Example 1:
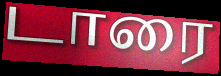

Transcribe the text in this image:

டாரை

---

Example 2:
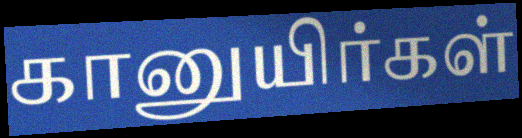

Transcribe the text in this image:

கானுயிர்கள்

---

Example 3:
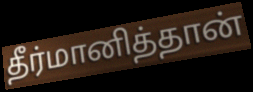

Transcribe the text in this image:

தீர்மானித்தான்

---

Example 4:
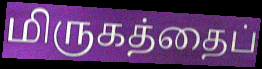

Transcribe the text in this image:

மிருகத்தைப்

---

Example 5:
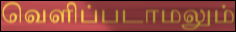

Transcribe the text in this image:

வெளிப்படாமலும்